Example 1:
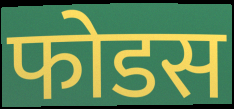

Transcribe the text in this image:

फोडस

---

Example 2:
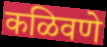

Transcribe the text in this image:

कळिवणे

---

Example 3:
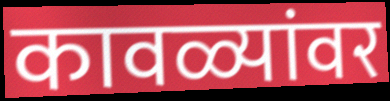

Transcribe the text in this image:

कावळ्यांवर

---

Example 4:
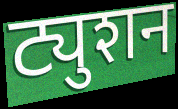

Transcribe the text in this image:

ट्युशन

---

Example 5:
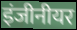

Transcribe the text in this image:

इंजीनीयर